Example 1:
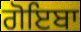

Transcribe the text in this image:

ਗੋਇਬਾ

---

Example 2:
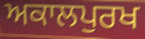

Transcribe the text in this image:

ਅਕਾਲਪੁਰਖ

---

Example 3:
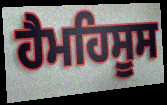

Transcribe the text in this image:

ਹੈਮਹਿਸੂਸ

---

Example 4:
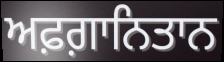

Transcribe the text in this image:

ਅਫ਼ਗ਼ਾਨਿਤਾਨ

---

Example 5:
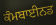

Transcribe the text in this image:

ਕੰਮਬਾਈਨਡ